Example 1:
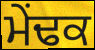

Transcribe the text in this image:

ਮੇਂਢਕ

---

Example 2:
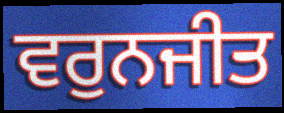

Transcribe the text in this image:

ਵਰੁਨਜੀਤ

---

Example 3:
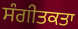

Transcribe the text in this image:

ਸੰਗੀਤਕਤਾ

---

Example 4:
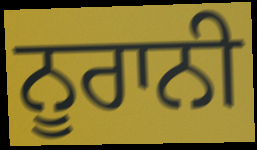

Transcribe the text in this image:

ਨੂਰਾਨੀ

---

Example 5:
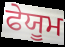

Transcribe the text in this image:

ਫੇਯੂਮ